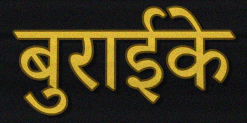
बुराईके